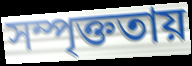
সম্পৃক্ততায়